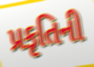
પ્રકૃતિની